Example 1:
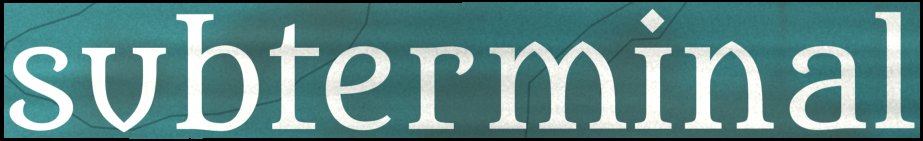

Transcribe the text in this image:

subterminal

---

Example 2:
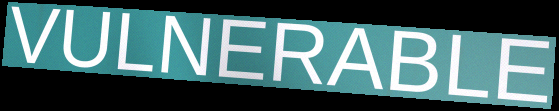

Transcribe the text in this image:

VULNERABLE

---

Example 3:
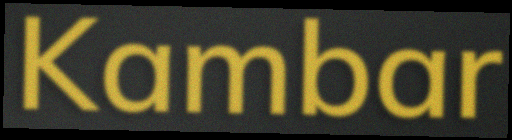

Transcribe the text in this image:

Kambar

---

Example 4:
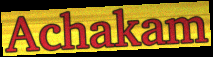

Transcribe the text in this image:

Achakam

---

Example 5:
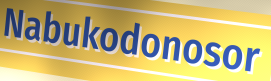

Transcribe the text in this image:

Nabukodonosor